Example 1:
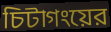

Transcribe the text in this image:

চিটাগংয়ের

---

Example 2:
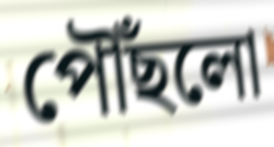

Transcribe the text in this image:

পৌঁছলো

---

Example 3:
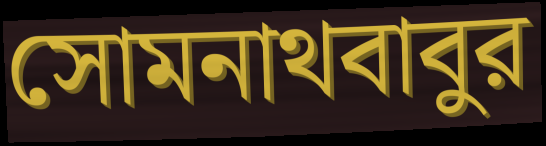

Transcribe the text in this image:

সোমনাথবাবুর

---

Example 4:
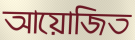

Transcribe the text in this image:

আয়োজিত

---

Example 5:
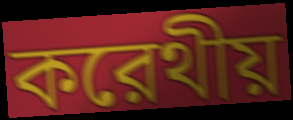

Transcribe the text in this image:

করেথীয়